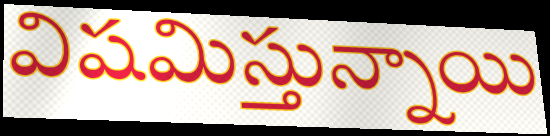
విషమిస్తున్నాయి